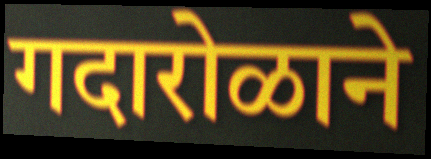
गदारोळाने